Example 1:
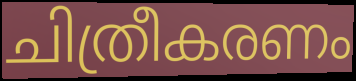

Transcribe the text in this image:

ചിത്രീകരണം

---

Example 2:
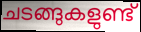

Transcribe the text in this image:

ചടങ്ങുകളുണ്ട്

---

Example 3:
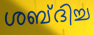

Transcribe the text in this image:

ശബ്ദിച്ച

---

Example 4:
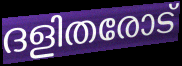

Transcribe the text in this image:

ദളിതരോട്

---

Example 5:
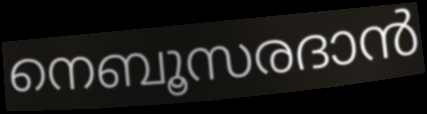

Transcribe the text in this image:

നെബൂസരദാൻ